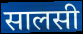
सालसी